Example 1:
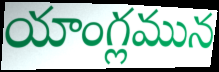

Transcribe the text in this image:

యాంగ్లమున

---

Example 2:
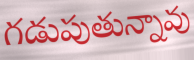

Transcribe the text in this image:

గడుపుతున్నావు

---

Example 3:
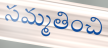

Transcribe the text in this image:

సమ్మతించి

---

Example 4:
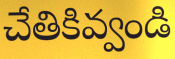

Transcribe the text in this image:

చేతికివ్వండి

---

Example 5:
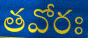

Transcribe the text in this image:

తవోరః